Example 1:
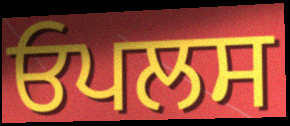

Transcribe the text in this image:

ਓਪਲਸ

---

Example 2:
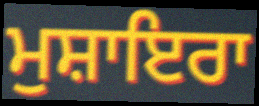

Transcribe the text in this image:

ਮੁਸ਼ਾਇਰਾ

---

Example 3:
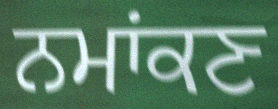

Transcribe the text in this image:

ਨਮਾਂਕਣ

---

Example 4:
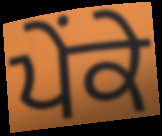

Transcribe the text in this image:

ਪੇਂਕੇ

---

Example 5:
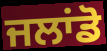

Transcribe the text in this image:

ਜਲਾਂਡੋ